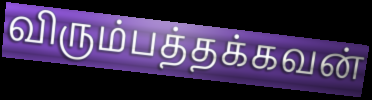
விரும்பத்தக்கவன்